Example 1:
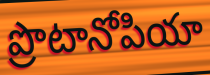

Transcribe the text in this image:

ప్రొటానోపియా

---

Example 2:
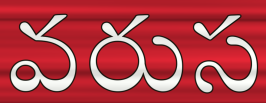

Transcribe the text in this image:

వరుస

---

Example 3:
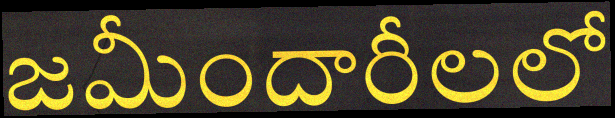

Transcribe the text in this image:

జమీందారీలలో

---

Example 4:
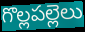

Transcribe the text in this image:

గొల్లపల్లెలు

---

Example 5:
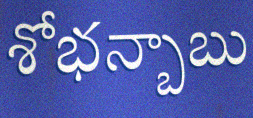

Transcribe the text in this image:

శోభన్బాబు